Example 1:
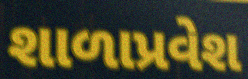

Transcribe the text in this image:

શાળાપ્રવેશ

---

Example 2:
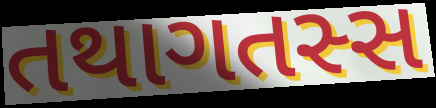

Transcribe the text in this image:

તથાગતસ્સ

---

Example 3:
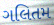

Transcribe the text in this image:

ગલિતમ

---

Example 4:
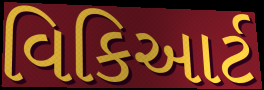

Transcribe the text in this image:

વિકિઆર્ટ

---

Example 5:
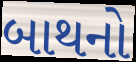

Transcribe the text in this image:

બાથનો